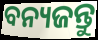
ବନ୍ୟଜନ୍ତୁ